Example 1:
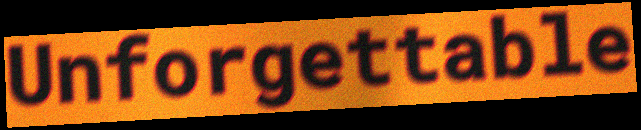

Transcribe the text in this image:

Unforgettable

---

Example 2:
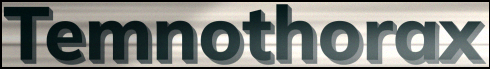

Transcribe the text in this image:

Temnothorax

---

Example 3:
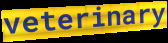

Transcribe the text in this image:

veterinary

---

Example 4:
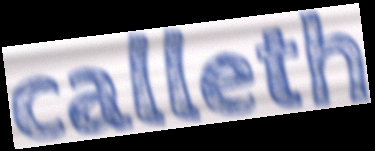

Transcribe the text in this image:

calleth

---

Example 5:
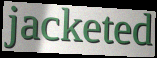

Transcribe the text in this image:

jacketed